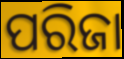
ପରିଜା